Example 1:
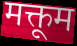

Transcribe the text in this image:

मक्तूम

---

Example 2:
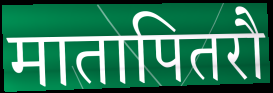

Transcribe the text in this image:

मातापितरौ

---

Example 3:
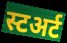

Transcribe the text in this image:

स्टअर्ट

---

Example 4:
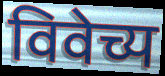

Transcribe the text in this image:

विवेच्य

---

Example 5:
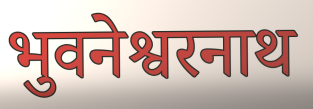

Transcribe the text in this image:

भुवनेश्वरनाथ